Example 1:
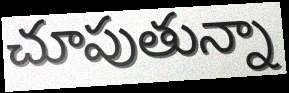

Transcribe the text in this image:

చూపుతున్నా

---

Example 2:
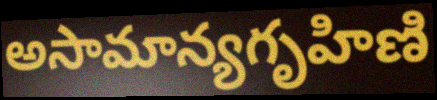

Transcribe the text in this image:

అసామాన్యగృహిణి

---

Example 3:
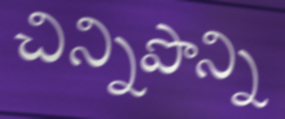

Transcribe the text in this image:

చిన్నిపొన్ని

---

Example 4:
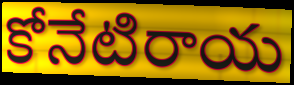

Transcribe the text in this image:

కోనేటిరాయ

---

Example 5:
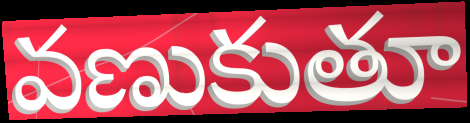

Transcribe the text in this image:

వణుకుతూ